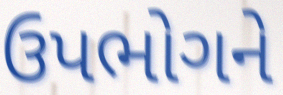
ઉપભોગને